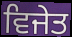
ਵਿਜੇਤ